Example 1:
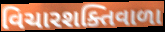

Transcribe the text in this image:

વિચારશક્તિવાળા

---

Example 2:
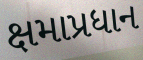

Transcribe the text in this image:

ક્ષમાપ્રધાન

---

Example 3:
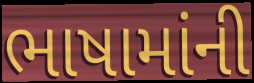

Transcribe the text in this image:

ભાષામાંની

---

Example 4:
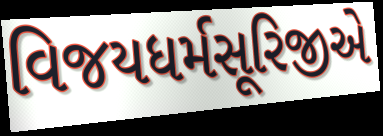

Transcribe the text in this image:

વિજયધર્મસૂરિજીએ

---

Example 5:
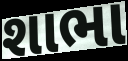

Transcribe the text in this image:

શાભા